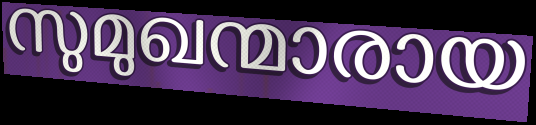
സുമുഖന്മാരായ